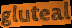
gluteal